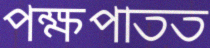
পক্ষপাতত